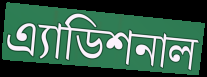
এ্যাডিশনাল